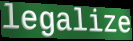
legalize